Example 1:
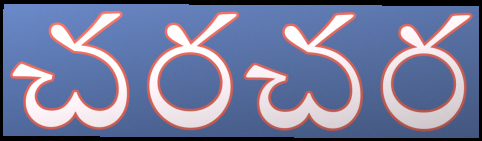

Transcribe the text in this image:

చరచర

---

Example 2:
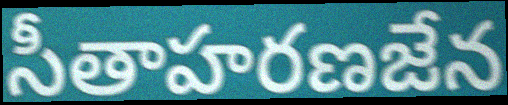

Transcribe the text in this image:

సీతాహరణజేన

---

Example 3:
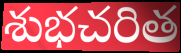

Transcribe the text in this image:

శుభచరిత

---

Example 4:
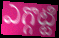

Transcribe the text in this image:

ఎగ్గొట్టి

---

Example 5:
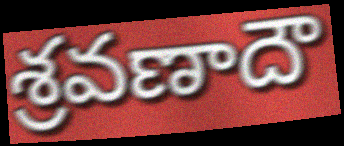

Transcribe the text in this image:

శ్రవణాదౌ